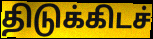
திடுக்கிடச்